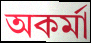
অকর্মা